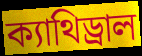
ক্যাথিড্রাল